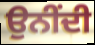
ਉਨੀਂਦੀ